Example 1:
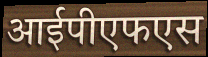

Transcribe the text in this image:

आईपीएफएस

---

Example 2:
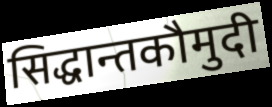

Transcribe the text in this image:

सिद्धान्तकौमुदी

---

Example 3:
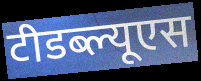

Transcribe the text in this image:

टीडब्ल्यूएस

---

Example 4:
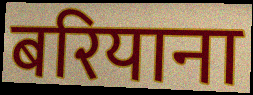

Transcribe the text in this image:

बरियाना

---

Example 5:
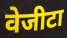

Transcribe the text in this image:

वेजीटा